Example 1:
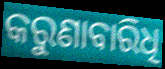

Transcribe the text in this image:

କରୁଣାବାରିଧି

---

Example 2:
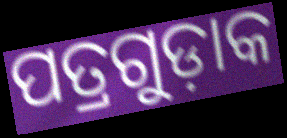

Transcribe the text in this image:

ପତ୍ରଗୁଡ଼ାକ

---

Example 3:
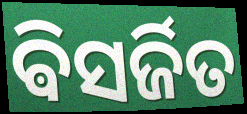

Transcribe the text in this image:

ଵିସର୍ଜିତ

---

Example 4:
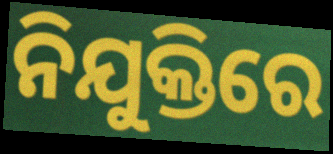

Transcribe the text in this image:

ନିଯୁକ୍ତିରେ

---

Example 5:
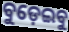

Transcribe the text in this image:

ବୁଡ଼େଇବୁ